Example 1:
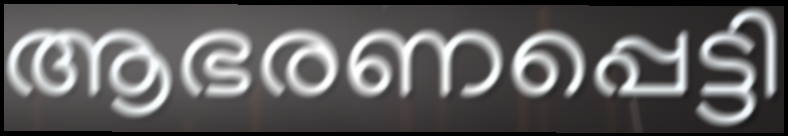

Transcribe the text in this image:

ആഭരണപ്പെട്ടി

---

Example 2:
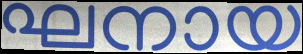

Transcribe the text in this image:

ഘനായ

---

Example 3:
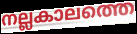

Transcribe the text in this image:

നല്ലകാലത്തെ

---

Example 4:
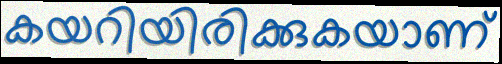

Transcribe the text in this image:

കയറിയിരിക്കുകയാണ്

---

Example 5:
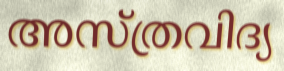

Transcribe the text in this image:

അസ്ത്രവിദ്യ